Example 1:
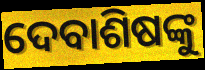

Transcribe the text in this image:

ଦେବାଶିଷଙ୍କୁ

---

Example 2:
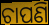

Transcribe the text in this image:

ଚାପଣି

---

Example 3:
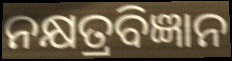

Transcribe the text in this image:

ନକ୍ଷତ୍ରବିଜ୍ଞାନ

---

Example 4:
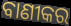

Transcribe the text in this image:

ବାଣୀକର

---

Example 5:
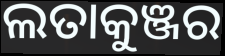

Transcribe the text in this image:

ଲତାକୁଞ୍ଜର